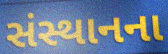
સંસ્થાનના